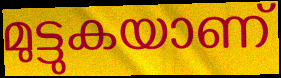
മുട്ടുകയാണ്